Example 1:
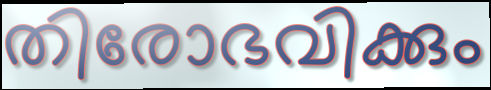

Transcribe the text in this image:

തിരോഭവിക്കും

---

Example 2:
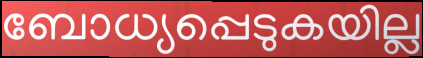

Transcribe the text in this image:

ബോധ്യപ്പെടുകയില്ല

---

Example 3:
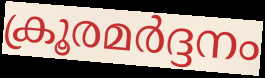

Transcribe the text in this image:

ക്രൂരമർദ്ദനം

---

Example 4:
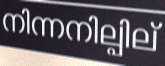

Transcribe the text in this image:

നിന്നനില്പില്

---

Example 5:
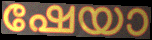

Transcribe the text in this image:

ഷേയാ